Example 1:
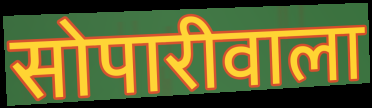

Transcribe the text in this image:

सोपारीवाला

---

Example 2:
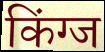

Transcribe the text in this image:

किंग्ज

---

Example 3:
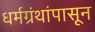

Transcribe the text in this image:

धर्मग्रंथांपासून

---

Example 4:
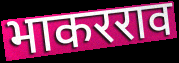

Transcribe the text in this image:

भाकरराव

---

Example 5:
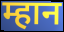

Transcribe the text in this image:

म्हान